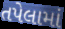
તપેલામાં